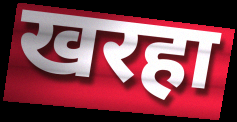
खरहा